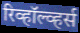
रिव्हॉल्व्हर्स